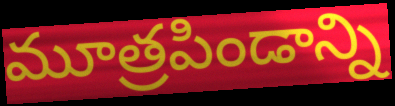
మూత్రపిండాన్ని